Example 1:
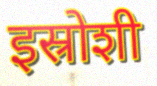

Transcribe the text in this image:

इस्रोशी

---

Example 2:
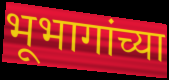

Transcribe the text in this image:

भूभागांच्या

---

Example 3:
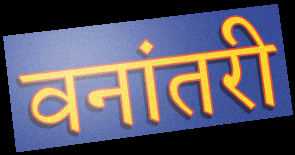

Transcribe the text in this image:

वनांतरी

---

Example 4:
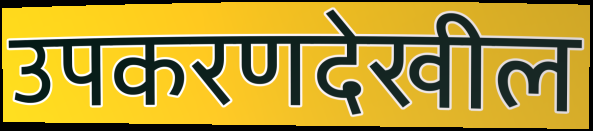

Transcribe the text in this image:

उपकरणदेखील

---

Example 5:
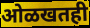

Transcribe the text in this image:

ओळखतही